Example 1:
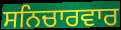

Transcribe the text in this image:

ਸਨਿਚਾਰਵਾਰ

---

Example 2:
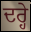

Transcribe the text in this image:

ਦਰ੍ਹੇ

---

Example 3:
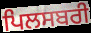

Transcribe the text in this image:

ਪਿਲਸਬਰੀ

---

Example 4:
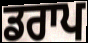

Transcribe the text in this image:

ਡਰਾਪ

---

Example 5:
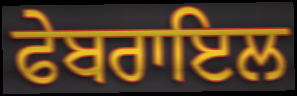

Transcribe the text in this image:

ਫੇਬਰਾਇਲ